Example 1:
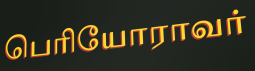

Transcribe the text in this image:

பெரியோராவர்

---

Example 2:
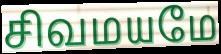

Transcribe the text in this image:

சிவமயமே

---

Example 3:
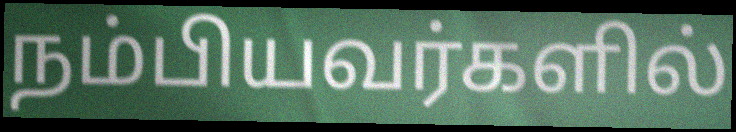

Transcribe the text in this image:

நம்பியவர்களில்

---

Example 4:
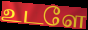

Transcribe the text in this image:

உடளே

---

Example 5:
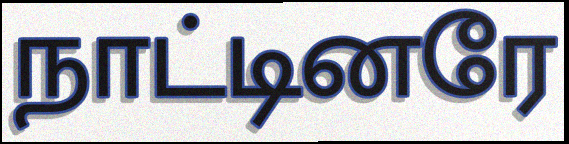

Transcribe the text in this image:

நாட்டினரே